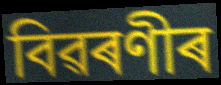
বিৱৰণীৰ